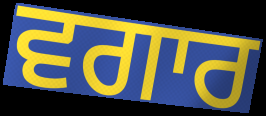
ਵਗਾਰ